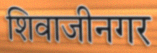
शिवाजीनगर